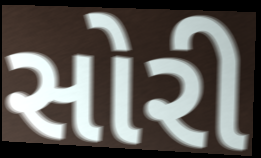
સોરી